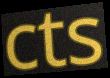
cts